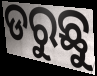
ଡରୁଛୁ